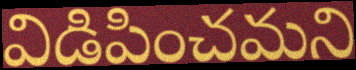
విడిపించమని